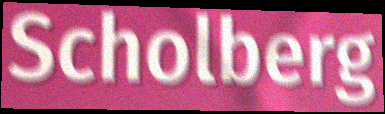
Scholberg